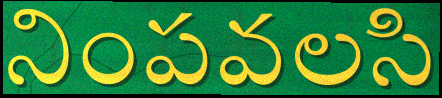
నింపవలసి